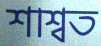
শাশ্বত